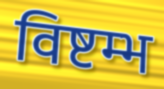
विष्टम्भ